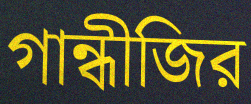
গান্ধীজির